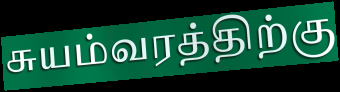
சுயம்வரத்திற்கு